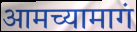
आमच्यामागं